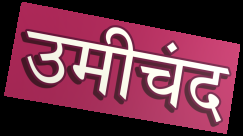
उमीचंद